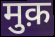
मुक़